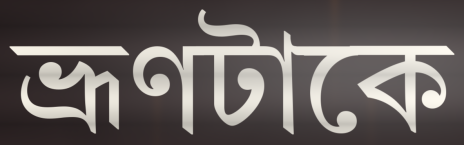
ভ্রূণটাকে